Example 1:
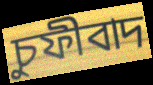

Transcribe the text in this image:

চুফীবাদ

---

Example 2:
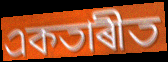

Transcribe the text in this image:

একতাৰীত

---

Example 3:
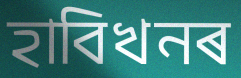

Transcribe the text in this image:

হাবিখনৰ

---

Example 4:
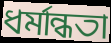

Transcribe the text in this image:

ধৰ্মান্ধতা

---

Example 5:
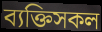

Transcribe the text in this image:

ব্যক্তিসকল